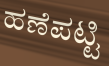
ಹಣೆಪಟ್ಟಿ